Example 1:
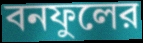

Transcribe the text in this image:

বনফুলের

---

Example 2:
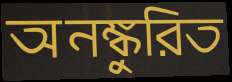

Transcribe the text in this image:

অনঙ্কুরিত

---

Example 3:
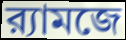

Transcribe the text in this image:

র‍্যামজে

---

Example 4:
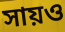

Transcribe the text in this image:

সায়ও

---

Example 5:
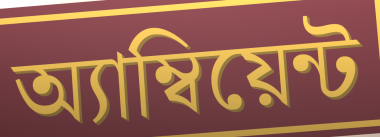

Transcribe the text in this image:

অ্যাম্বিয়েন্ট